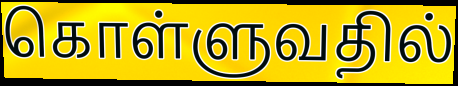
கொள்ளுவதில்